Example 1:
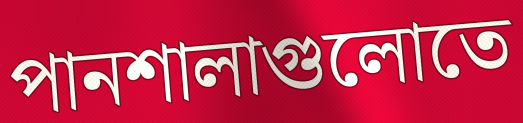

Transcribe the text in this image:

পানশালাগুলোতে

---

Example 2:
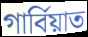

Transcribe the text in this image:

গার্বিয়াত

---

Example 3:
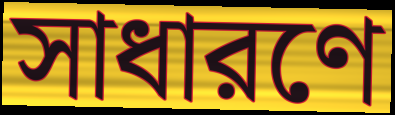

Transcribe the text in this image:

সাধারণে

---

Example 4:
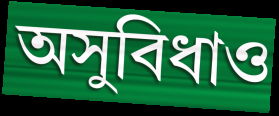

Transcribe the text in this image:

অসুবিধাও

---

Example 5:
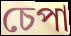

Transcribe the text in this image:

চেপা